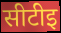
सीटीइ